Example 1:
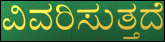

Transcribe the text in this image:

ವಿವರಿಸುತ್ತದೆ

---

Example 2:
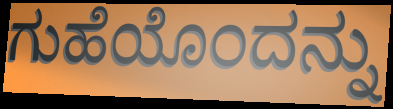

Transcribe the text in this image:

ಗುಹೆಯೊಂದನ್ನು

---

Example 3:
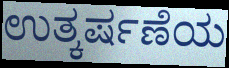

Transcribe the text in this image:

ಉತ್ಕರ್ಷಣೆಯ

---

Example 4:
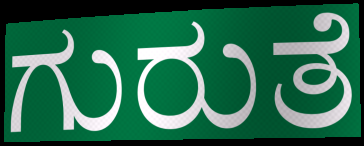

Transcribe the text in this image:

ಗುರುತೆ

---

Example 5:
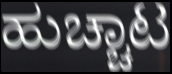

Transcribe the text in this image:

ಹುಚ್ಚಾಟ